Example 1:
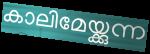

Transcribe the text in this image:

കാലിമേയ്ക്കുന്ന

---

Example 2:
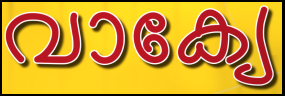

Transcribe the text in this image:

വാക്യേ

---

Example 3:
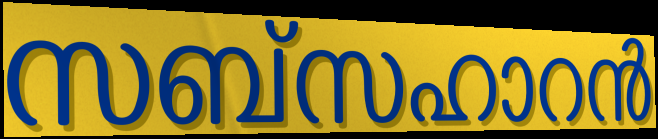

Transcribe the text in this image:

സബ്സഹാറൻ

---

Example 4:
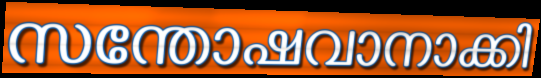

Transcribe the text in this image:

സന്തോഷവാനാക്കി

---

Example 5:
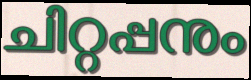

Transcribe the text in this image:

ചിറ്റപ്പനും